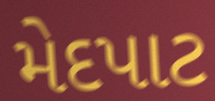
મેદપાટ